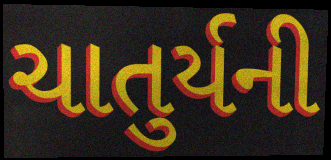
ચાતુર્યની